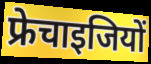
फ्रेचाइजियों